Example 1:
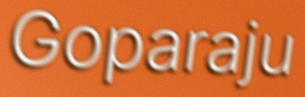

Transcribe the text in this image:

Goparaju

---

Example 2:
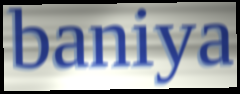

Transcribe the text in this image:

baniya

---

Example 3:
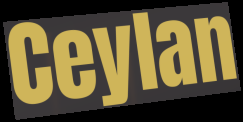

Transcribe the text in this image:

Ceylan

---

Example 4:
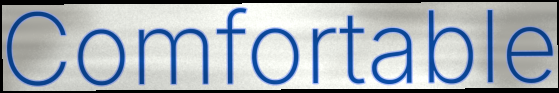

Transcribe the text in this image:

Comfortable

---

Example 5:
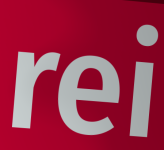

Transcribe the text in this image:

rei